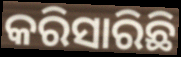
କରିସାରିଛି